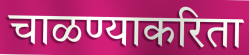
चाळण्याकरिता